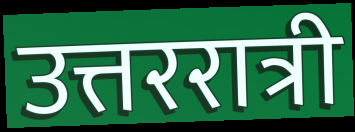
उत्तररात्री